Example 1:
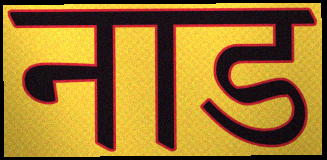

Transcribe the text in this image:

नाड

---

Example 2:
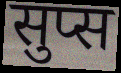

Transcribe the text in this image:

सुप्स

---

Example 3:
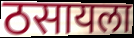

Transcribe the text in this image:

ठसायला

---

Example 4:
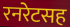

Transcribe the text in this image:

रनरेटसह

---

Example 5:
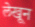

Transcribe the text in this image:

लेखून